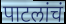
पाटलांचं